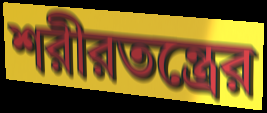
শরীরতন্ত্রের